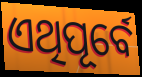
ଏଥିପୂର୍ବେ